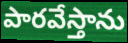
పారవేస్తాను